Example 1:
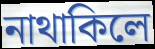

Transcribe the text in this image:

নাথাকিলে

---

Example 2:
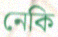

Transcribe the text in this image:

নেকি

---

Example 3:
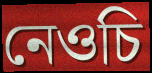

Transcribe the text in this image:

নেওচি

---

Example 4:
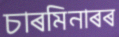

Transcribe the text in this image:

চাৰমিনাৰৰ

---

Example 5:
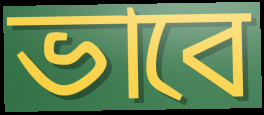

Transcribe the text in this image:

ভাবে